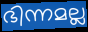
ഭിന്നമല്ല